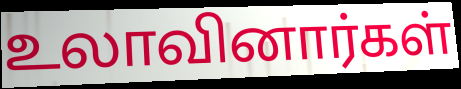
உலாவினார்கள்